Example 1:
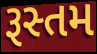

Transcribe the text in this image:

રૂસ્તમ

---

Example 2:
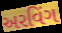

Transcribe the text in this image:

અરવિંગ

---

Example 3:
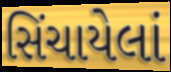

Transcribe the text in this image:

સિંચાયેલાં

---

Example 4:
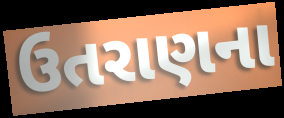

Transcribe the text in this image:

ઉતરાણના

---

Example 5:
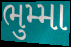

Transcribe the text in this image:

ભુમ્મા